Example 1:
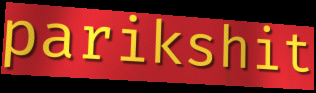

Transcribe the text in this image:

parikshit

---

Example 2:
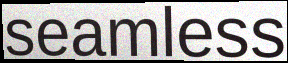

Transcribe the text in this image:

seamless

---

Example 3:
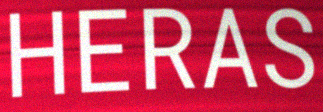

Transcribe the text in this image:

HERAS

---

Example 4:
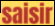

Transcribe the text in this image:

saisir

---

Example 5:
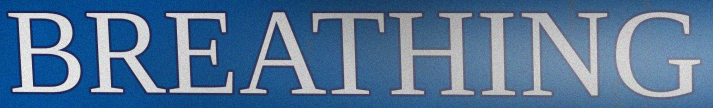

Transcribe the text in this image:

BREATHING